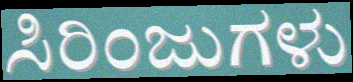
ಸಿರಿಂಜುಗಳು